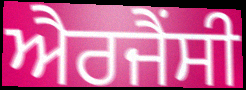
ਐਰਜੈਂਸੀ